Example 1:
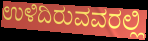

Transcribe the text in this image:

ಉಳಿದಿರುವವರಲ್ಲಿ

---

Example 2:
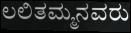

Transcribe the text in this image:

ಲಲಿತಮ್ಮನವರು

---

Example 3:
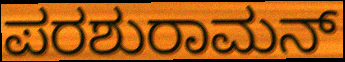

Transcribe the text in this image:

ಪರಶುರಾಮನ್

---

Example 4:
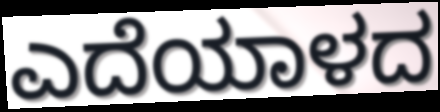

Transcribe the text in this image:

ಎದೆಯಾಳದ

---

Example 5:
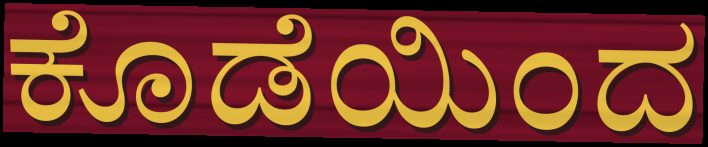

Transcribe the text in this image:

ಕೊಡೆಯಿಂದ